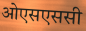
ओएसएससी